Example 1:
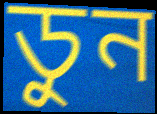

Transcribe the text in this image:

ডুন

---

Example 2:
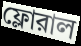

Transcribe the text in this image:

ফ্লোরাল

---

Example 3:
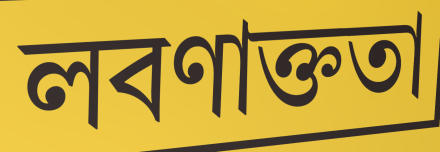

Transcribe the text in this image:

লবণাক্ততা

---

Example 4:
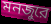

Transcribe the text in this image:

মনজুরে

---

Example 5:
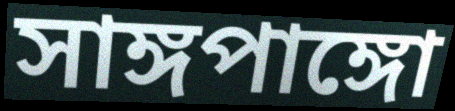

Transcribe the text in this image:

সাঙ্গপাঙ্গো